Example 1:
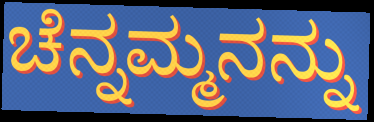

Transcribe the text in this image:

ಚೆನ್ನಮ್ಮನನ್ನು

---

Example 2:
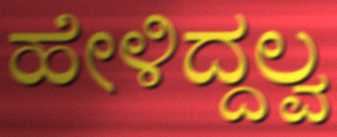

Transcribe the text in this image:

ಹೇಳಿದ್ದಲ್ವ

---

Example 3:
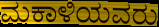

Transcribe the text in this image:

ಮಕಾಳಿಯವರು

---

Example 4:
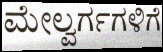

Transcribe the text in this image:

ಮೇಲ್ವರ್ಗಗಳಿಗೆ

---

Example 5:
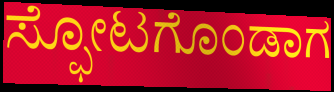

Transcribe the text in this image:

ಸ್ಫೋಟಗೊಂಡಾಗ